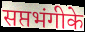
सप्तभंगीके